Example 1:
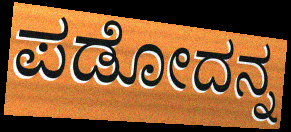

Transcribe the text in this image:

ಪಡೋದನ್ನ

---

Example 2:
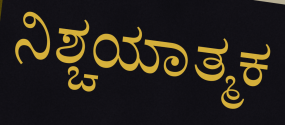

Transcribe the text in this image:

ನಿಶ್ಚಯಾತ್ಮಕ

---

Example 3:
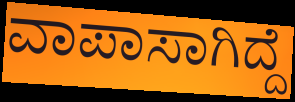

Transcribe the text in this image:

ವಾಪಾಸಾಗಿದ್ದೆ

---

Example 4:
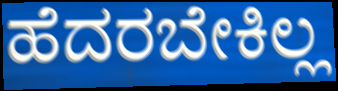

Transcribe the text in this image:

ಹೆದರಬೇಕಿಲ್ಲ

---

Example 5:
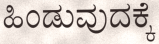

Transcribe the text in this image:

ಹಿಂಡುವುದಕ್ಕೆ